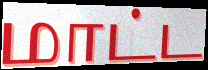
மாட்ட